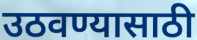
उठवण्यासाठी